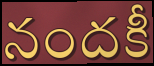
నందకీ